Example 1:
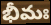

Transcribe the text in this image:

భీమః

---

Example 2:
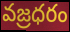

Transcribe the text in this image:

వజ్రధరం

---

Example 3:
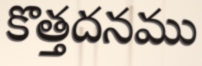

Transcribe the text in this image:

కొత్తదనము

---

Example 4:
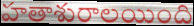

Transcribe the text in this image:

హతాశురాలయింది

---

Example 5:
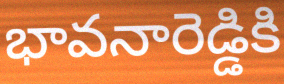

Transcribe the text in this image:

భావనారెడ్డికి